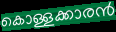
കൊള്ളക്കാരൻ